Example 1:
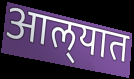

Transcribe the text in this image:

आल्यात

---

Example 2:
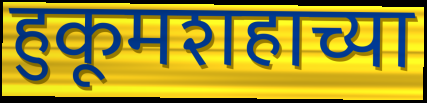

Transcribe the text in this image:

हुकूमशहाच्या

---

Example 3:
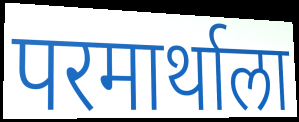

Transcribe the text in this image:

परमार्थाला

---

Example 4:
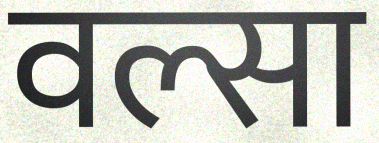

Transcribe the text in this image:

वल्सा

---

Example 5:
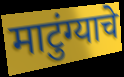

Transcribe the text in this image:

माटुंग्याचे